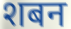
शबन